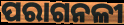
ପରାଗନଳୀ